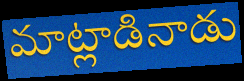
మాట్లాడినాడు